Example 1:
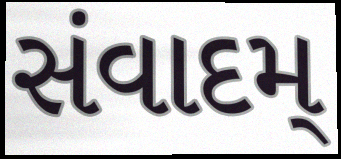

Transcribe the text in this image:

સંવાદમ્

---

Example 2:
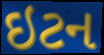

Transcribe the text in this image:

ઇટન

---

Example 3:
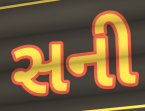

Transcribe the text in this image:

સની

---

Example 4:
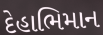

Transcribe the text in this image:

દેહાભિમાન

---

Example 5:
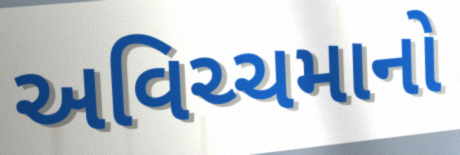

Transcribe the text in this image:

અવિચ્ચમાનો